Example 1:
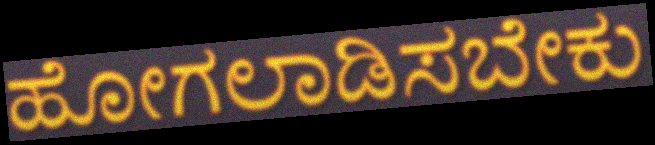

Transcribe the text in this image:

ಹೋಗಲಾಡಿಸಬೇಕು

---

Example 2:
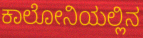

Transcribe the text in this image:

ಕಾಲೋನಿಯಲ್ಲಿನ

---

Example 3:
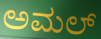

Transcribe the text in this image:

ಅಮಲ್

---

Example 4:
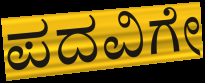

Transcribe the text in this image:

ಪದವಿಗೇ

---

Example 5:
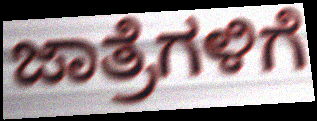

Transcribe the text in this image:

ಜಾತ್ರೆಗಳಿಗೆ